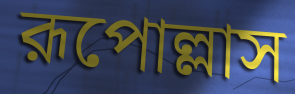
রূপোল্লাস